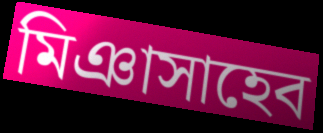
মিঞাসাহেব